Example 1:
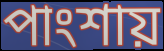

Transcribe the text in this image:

পাংশায়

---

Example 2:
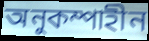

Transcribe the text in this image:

অনুকম্পাহীন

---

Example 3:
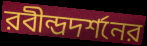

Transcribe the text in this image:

রবীন্দ্রদর্শনের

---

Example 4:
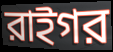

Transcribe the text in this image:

রাইগর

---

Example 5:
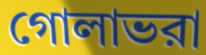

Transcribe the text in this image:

গোলাভরা